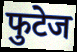
फुटेज